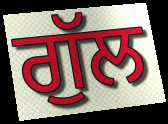
ਗੁੱਲ